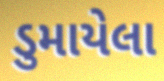
ડુમાયેલા